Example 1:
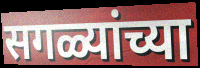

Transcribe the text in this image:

सगळ्यांच्या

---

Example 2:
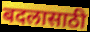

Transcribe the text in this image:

बदलासाठी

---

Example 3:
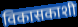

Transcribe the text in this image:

विकासकाशी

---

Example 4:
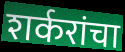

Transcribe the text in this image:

शर्करांचा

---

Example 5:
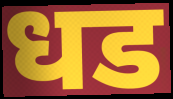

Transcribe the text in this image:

धड